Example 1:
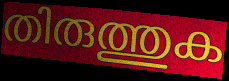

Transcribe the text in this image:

തിരുത്തുക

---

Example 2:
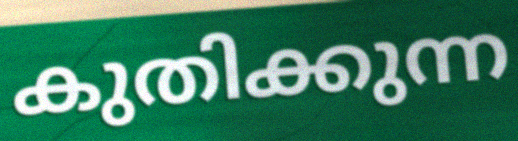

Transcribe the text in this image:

കുതിക്കുന്ന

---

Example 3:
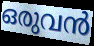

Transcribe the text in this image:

ഒരുവൻ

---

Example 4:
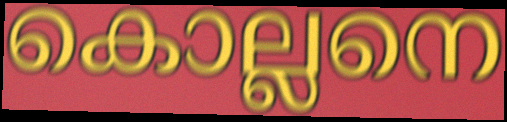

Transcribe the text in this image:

കൊല്ലനെ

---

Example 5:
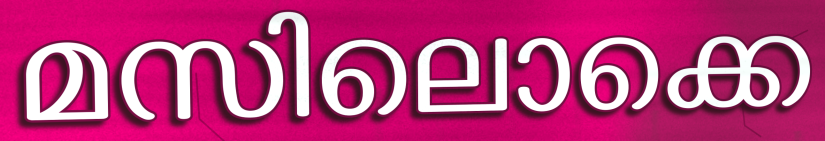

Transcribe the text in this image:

മസിലൊക്കെ